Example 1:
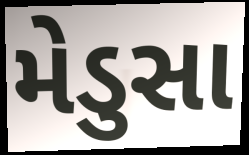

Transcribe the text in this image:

મેડુસા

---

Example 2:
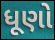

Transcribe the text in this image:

ધૂણો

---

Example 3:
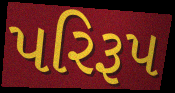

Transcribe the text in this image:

પરિરૂપ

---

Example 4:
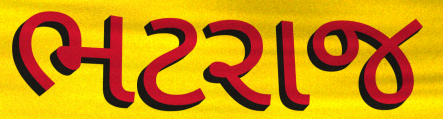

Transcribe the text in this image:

ભટરાજ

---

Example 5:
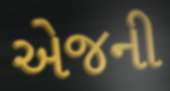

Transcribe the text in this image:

એજની